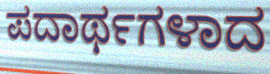
ಪದಾರ್ಥಗಳಾದ